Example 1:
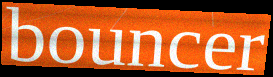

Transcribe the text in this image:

bouncer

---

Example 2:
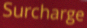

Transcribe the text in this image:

Surcharge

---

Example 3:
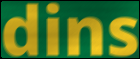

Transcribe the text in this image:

dins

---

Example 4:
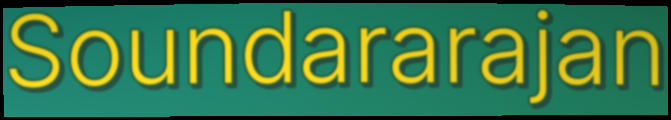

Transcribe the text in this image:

Soundararajan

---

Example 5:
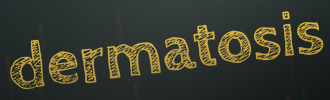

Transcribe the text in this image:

dermatosis